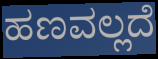
ಹಣವಲ್ಲದೆ